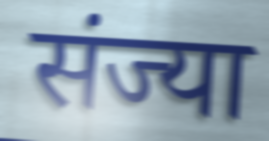
संज्या